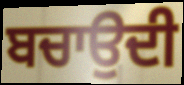
ਬਚਾਉਦੀ